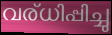
വര്ധിപ്പിച്ചു